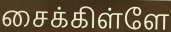
சைக்கிள்ளே